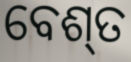
ବେଶ୍‍ତ